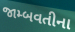
જામ્બવતીના